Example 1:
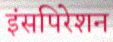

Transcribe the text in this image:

इंसपिरेशन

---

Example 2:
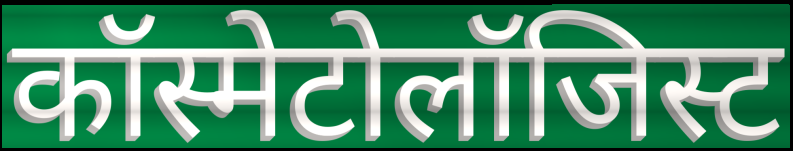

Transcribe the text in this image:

कॉस्मेटोलॉजिस्ट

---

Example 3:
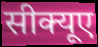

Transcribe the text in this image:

सीक्यूए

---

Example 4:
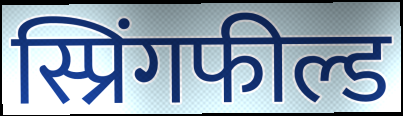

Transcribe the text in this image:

स्प्रिंगफील्ड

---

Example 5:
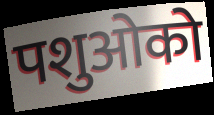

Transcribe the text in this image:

पशुओको